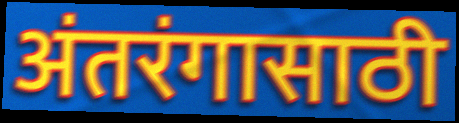
अंतरंगासाठी